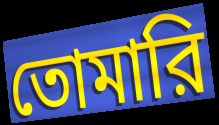
তোমারি